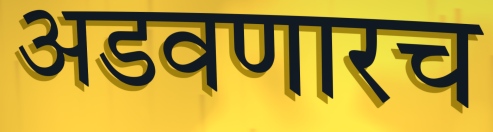
अडवणारच